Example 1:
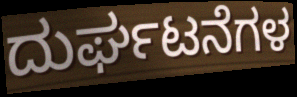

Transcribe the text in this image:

ದುರ್ಘಟನೆಗಳ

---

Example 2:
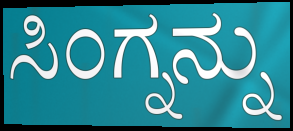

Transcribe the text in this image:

ಸಿಂಗ್ನನ್ನು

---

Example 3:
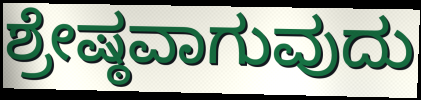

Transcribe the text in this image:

ಶ್ರೇಷ್ಠವಾಗುವುದು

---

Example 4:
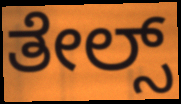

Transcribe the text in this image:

ತೇಲ್ಸ್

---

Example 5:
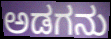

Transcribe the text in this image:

ಅಡಗನು